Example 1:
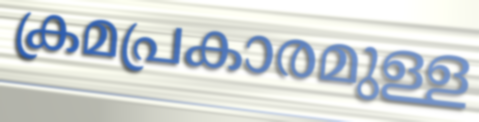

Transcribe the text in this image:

ക്രമപ്രകാരമുള്ള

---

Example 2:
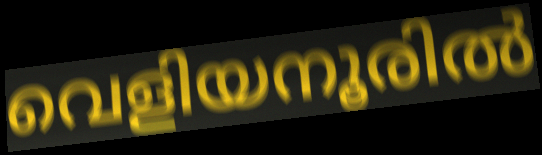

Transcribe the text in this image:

വെളിയനൂരിൽ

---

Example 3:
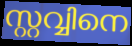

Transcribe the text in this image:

സ്റ്റവ്വിനെ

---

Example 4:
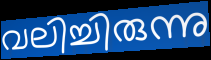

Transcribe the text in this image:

വലിച്ചിരുന്നു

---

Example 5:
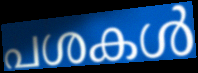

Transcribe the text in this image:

പശകൾ